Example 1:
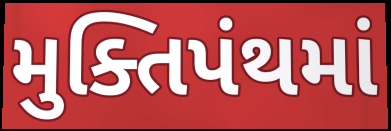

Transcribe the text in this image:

મુક્તિપંથમાં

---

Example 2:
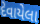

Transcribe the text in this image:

દેવાયેલા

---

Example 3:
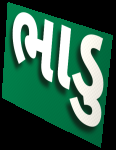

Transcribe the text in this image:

ભાડુ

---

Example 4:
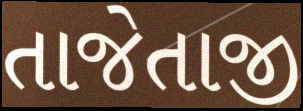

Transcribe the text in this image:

તાજેતાજી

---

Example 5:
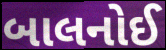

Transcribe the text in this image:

બાલનોઈ